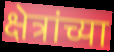
क्षेत्रांच्या